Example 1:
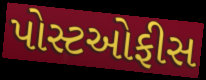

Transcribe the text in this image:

પોસ્ટઓફીસ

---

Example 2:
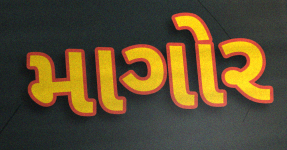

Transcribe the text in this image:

માગોર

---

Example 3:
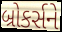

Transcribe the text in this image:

બ્રોકર્સને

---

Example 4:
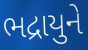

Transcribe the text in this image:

ભદ્રાયુને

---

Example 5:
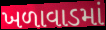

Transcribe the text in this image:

ખળાવાડમાં